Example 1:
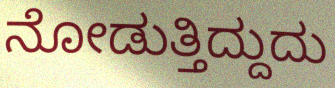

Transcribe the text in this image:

ನೋಡುತ್ತಿದ್ದುದು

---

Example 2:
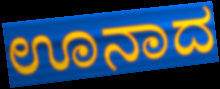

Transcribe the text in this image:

ಊನಾದ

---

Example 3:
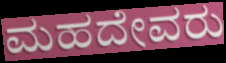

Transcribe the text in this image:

ಮಹದೇವರು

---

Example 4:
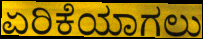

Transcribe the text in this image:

ಏರಿಕೆಯಾಗಲು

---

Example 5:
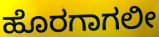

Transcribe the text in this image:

ಹೊರಗಾಗಲೀ